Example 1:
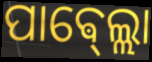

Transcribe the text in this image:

ପାଵ୍ଲ୍ଲୋ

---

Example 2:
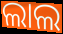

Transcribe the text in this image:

ଲାଲ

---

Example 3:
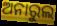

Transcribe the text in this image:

ଅନାରୁଲ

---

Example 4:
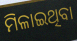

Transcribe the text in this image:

ମିଳାଇଥିବା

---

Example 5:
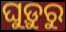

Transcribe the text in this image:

ଘୁଡ଼ୁରୁ